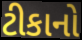
ટીકાનો